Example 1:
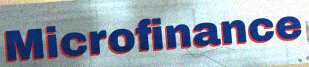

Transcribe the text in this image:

Microfinance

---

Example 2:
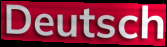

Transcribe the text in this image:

Deutsch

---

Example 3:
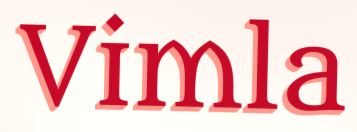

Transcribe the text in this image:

Vimla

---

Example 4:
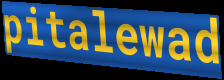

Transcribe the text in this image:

pitalewad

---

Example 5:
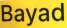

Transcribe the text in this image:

Bayad